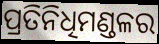
ପ୍ରତିନିଧିମଣ୍ଡଳର